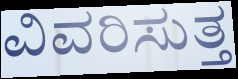
ವಿವರಿಸುತ್ತ